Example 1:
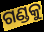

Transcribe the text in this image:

ଗଣ୍ଡକୁ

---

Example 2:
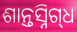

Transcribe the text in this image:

ଶାନ୍ତସ୍ନିଗ୍‌ଧ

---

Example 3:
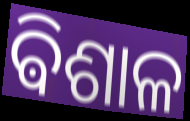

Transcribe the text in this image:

ଵିଶାଳ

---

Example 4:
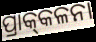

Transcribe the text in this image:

ପ୍ରାକ୍‌କଳନା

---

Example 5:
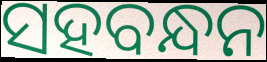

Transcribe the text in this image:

ସହବନ୍ଧନ